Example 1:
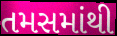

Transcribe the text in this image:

તમસમાંથી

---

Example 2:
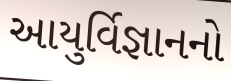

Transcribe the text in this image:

આયુર્વિજ્ઞાનનો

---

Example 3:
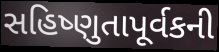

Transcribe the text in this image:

સહિષ્ણુતાપૂર્વકની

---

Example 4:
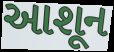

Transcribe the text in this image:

આશૂન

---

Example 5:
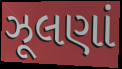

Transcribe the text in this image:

ઝૂલણાં